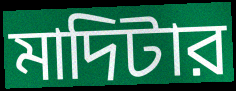
মাদিটার